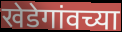
खेडेगांवच्या